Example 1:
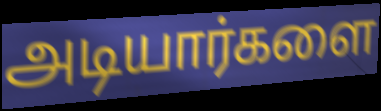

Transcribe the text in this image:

அடியார்களை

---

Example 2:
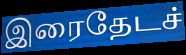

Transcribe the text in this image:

இரைதேடச்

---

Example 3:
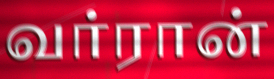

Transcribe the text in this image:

வர்ரான்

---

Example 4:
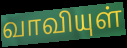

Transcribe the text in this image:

வாவியுள்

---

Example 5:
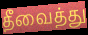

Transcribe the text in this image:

தீவைத்து